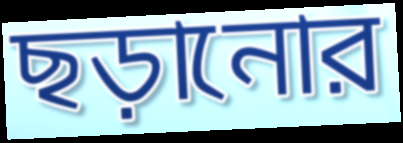
ছড়ানোর